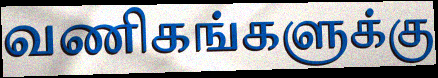
வணிகங்களுக்கு